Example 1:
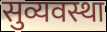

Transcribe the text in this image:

सुव्यवस्था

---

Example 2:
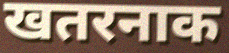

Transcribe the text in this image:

खतरनाक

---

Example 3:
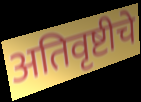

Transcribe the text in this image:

अतिवृष्टीचे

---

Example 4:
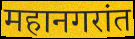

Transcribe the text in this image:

महानगरांत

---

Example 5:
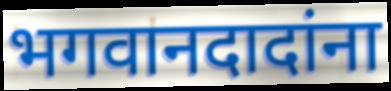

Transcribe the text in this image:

भगवानदादांना